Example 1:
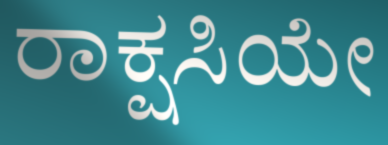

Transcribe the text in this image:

ರಾಕ್ಷಸಿಯೇ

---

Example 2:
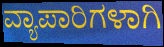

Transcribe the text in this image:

ವ್ಯಾಪಾರಿಗಳಾಗಿ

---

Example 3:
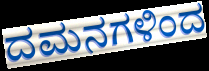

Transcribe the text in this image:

ದಮನಗಳಿಂದ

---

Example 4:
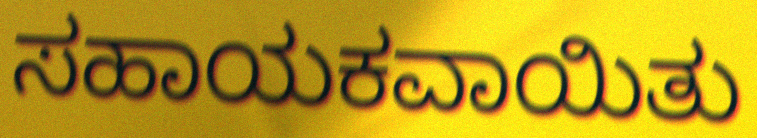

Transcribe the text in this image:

ಸಹಾಯಕವಾಯಿತು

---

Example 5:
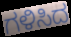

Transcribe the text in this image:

ಗಳಿಸಿದ